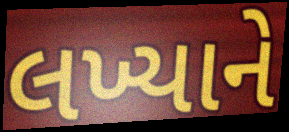
લખ્યાને